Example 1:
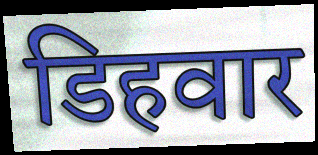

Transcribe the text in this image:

डिहवार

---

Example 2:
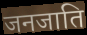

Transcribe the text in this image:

जनजाति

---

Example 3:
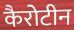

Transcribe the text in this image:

कैरोटीन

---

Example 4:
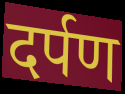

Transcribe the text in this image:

दर्पण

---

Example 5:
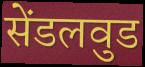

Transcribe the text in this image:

सेंडलवुड